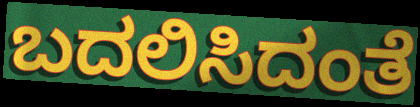
ಬದಲಿಸಿದಂತೆ